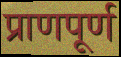
प्राणपूर्ण